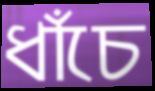
ধাঁচে